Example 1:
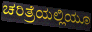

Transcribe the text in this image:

ಚರಿತ್ರೆಯಲ್ಲಿಯೂ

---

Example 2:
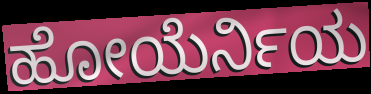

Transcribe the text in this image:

ಹೋಯೆರ್ನಿಯ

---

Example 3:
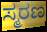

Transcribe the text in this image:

ಸ್ಮರಣ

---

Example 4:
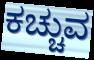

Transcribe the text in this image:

ಕಚ್ಚುವ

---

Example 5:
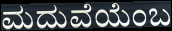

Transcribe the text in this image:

ಮದುವೆಯೆಂಬ